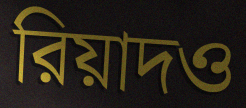
রিয়াদও